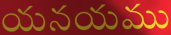
యనయము